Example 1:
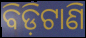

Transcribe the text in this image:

ବିଡ଼ିଟାଣି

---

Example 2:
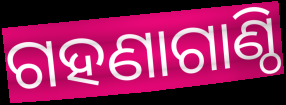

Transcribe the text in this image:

ଗହଣାଗାଣ୍ଠି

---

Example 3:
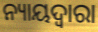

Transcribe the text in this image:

ନ୍ୟାୟଦ୍ୱାରା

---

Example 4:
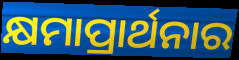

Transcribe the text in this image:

କ୍ଷମାପ୍ରାର୍ଥନାର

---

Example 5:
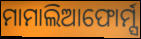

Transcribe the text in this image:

ମାମାଲିଆଫୋର୍ମ୍ସ